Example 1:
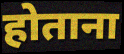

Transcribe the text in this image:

होताना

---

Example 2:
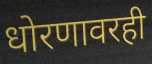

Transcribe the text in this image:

धोरणावरही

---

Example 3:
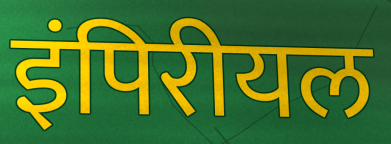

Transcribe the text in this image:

इंपिरीयल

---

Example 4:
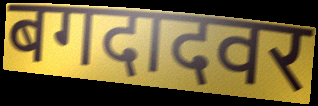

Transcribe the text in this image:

बगदादवर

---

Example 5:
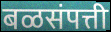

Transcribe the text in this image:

बळसंपत्ती